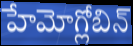
హేమోగ్లోబిన్